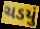
ચડયું